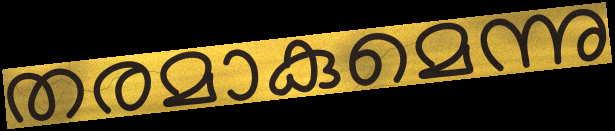
തരമാകുമെന്നു